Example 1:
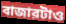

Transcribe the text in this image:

বাজারটাও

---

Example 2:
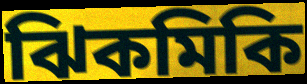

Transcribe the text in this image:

ঝিকমিকি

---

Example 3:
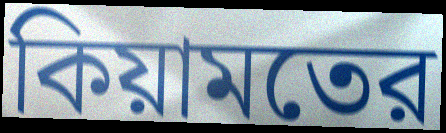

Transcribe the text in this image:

কিয়ামতের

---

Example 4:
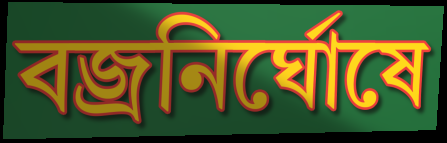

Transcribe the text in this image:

বজ্রনির্ঘোষে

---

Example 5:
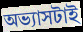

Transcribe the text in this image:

অভ্যাসটাই